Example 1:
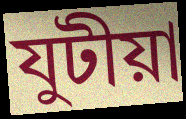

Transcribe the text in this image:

যুটীয়া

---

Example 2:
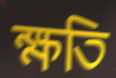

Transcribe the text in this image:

ক্ষতি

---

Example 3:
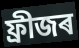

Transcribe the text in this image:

ফ্ৰীজৰ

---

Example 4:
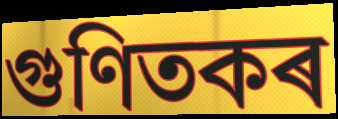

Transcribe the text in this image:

গুণিতকৰ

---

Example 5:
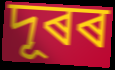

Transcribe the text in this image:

দূৰৰ